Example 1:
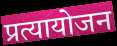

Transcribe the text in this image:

प्रत्यायोजन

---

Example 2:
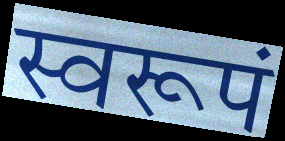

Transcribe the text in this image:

स्वरूपं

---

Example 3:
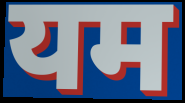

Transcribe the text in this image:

यम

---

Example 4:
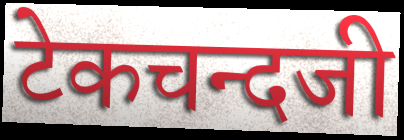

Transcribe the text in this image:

टेकचन्दजी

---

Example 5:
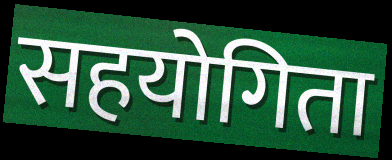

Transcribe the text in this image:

सहयोगिता